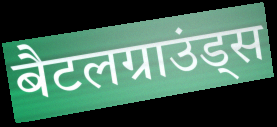
बैटलग्राउंड्स